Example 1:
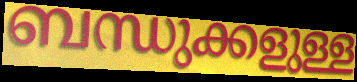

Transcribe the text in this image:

ബന്ധുക്കളുള്ള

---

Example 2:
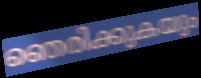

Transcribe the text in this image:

ഞെരിക്കുകയും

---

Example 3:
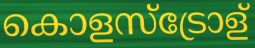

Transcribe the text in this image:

കൊളസ്ട്രോള്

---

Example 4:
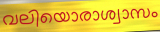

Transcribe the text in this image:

വലിയൊരാശ്വാസം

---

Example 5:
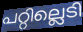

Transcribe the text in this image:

പറ്റില്ലെടി